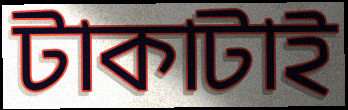
টাকাটাই